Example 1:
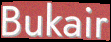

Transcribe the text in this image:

Bukair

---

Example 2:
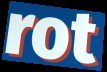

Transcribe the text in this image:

rot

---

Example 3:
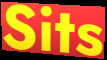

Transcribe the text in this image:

Sits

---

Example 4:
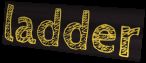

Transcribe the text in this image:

ladder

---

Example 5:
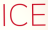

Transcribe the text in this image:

ICE